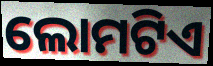
ଲୋମଟିଏ